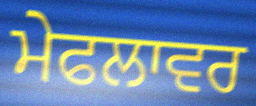
ਮੇਫਲਾਵਰ